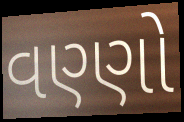
વણ્ણો